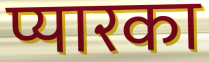
प्यारका